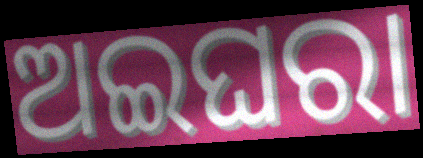
ଅଇଘରା